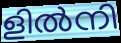
ളിൽനി